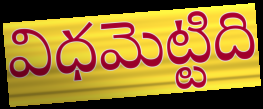
విధమెట్టిది